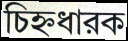
চিহ্নধারক